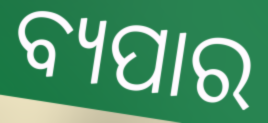
ବ୍ୟପାର